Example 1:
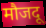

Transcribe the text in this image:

मौजदू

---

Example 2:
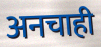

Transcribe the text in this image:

अनचाही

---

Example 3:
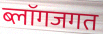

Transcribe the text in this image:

ब्लॉगजगत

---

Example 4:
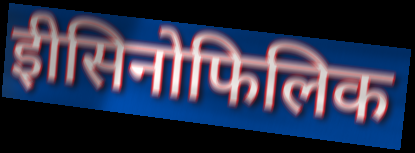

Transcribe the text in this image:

ईोसिनोफिलिक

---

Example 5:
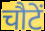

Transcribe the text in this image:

चौटें